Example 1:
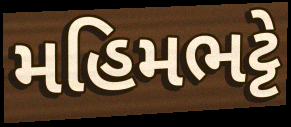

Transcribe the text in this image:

મહિમભટ્ટે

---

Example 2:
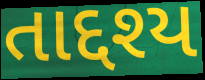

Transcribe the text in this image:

તાદ્દશ્ય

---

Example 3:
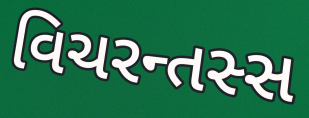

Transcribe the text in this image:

વિચરન્તસ્સ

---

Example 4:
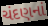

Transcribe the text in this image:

ચંદણનાં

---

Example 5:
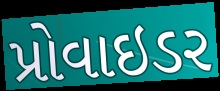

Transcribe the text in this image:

પ્રોવાઇડર